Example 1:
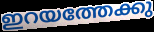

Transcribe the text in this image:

ഇറയത്തേക്കു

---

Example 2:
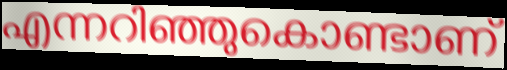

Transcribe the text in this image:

എന്നറിഞ്ഞുകൊണ്ടാണ്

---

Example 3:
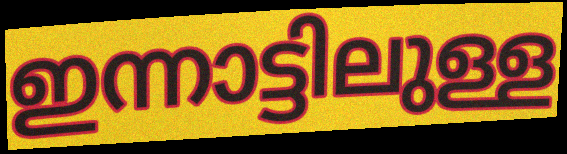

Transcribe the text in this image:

ഇന്നാട്ടിലുള്ള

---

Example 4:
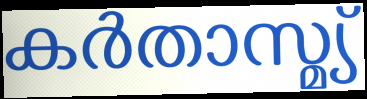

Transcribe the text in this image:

കർതാസ്മ്യ്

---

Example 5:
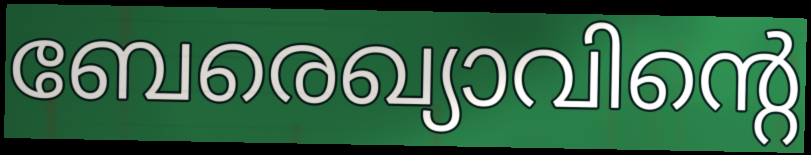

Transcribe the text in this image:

ബേരെഖ്യാവിന്റെ